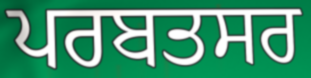
ਪਰਬਤਸਰ